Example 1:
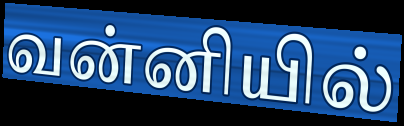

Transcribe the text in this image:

வன்னியில்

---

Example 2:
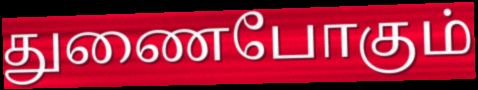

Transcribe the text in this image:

துணைபோகும்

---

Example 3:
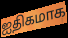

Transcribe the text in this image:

ஐதிகமாக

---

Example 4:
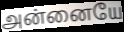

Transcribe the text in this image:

அன்னையே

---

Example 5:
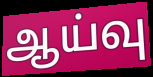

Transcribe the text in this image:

ஆய்வு